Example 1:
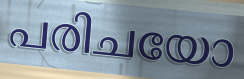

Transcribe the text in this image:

പരിചയോ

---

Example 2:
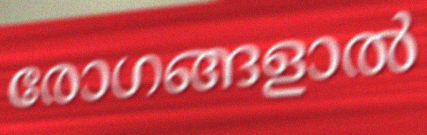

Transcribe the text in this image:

രോഗങ്ങളാൽ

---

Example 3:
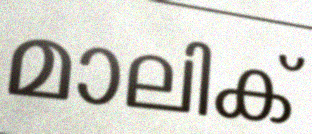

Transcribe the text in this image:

മാലിക്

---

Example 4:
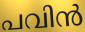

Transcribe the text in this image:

പവിൻ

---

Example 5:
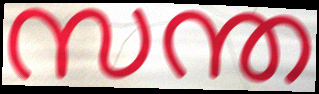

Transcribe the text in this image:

സന്ത